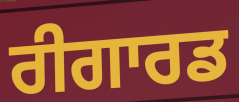
ਰੀਗਾਰਡ